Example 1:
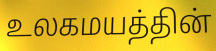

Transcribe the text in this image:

உலகமயத்தின்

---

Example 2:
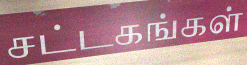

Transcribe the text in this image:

சட்டகங்கள்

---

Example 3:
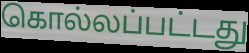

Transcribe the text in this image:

கொல்லப்பட்டது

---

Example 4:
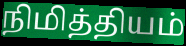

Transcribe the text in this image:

நிமித்தியம்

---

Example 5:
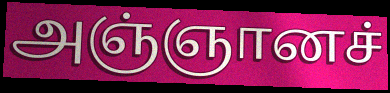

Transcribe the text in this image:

அஞ்ஞானச்